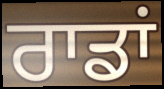
ਰਾਡਾਂ